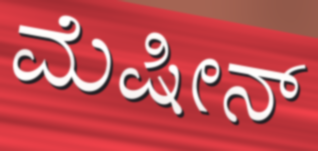
ಮೆಷೀನ್